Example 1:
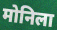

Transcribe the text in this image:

मोनिला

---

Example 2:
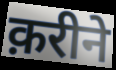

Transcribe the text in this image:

क़रीने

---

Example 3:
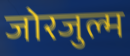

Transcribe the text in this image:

जोरजुल्म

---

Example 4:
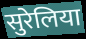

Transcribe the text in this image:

सुरेलिया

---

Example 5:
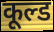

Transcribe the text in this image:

कूल्ड